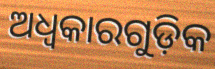
ଅଧ୍ବକାରଗୁଡ଼ିକ